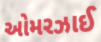
ઓમરઝાઈ